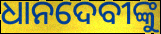
ଧାନଦେବୀଙ୍କୁ